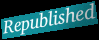
Republished